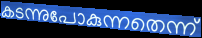
കടന്നുപോകുന്നതെന്ന്